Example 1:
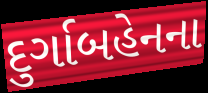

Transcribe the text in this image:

દુર્ગાબહેનના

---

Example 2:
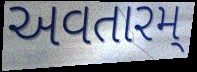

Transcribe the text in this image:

અવતારમ્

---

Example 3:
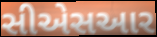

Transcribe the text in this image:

સીએસઆર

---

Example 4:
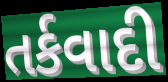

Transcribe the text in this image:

તર્કવાદી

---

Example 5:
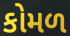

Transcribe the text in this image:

કોમળ